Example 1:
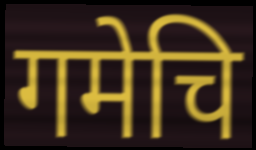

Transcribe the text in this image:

गमेचि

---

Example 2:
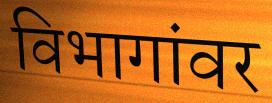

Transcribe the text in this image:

विभागांवर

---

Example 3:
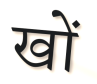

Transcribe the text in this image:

खों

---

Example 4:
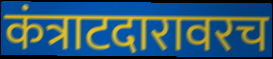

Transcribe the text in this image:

कंत्राटदारावरच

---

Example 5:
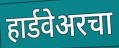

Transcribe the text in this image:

हार्डवेअरचा